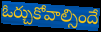
ఓర్చుకోవాల్సిందే